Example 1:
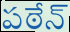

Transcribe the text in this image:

పఠేన్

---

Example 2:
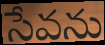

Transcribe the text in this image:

సేవను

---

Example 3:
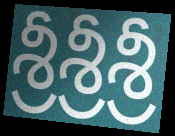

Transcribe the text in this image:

శ్రీశ్రీశ్రీ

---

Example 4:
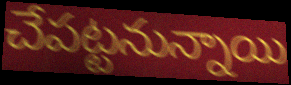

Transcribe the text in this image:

చేపట్టనున్నాయి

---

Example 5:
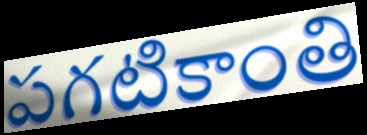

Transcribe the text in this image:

పగటికాంతి